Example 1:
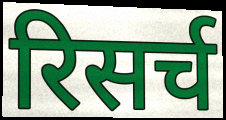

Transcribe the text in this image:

रिसर्च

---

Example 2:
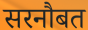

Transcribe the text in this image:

सरनौबत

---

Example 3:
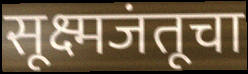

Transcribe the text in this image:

सूक्ष्मजंतूचा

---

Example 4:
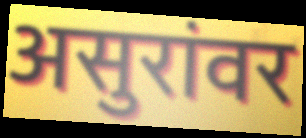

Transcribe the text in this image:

असुरांवर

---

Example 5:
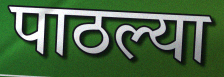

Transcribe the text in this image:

पाठल्या